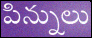
పిన్నులు